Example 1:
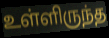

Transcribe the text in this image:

உள்ளிருந்த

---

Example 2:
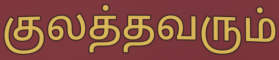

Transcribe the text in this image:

குலத்தவரும்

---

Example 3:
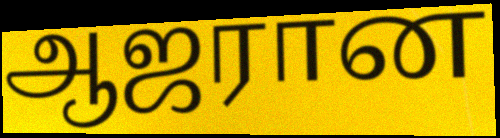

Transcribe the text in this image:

ஆஜரான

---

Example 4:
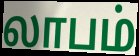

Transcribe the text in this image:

லாபம்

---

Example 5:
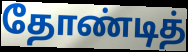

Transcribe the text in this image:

தோண்டித்